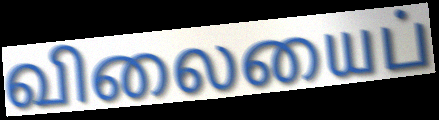
விலையைப்